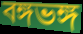
বঙ্গভঙ্গ